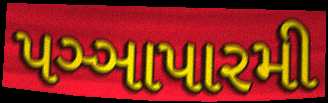
પઞ્ઞાપારમી